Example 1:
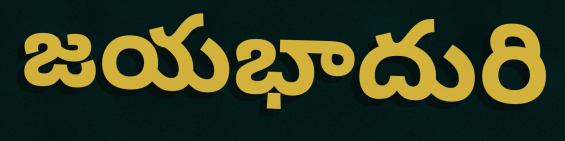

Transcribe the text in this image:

జయభాదురి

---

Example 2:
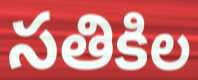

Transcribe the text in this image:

సతికిల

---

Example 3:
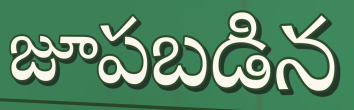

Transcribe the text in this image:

జూపబడిన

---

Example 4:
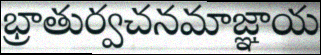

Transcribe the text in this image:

భ్రాతుర్వచనమాజ్ఞాయ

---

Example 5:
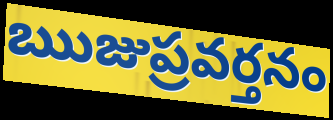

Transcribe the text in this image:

ఋజుప్రవర్తనం